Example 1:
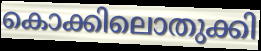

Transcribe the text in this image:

കൊക്കിലൊതുക്കി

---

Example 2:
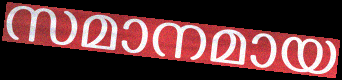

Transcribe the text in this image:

സമാനമായ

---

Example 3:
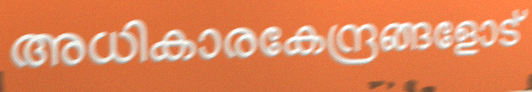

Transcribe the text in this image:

അധികാരകേന്ദ്രങ്ങളോട്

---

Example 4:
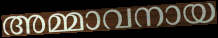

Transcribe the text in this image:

അമ്മാവനായ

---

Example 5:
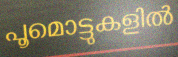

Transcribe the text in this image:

പൂമൊട്ടുകളിൽ